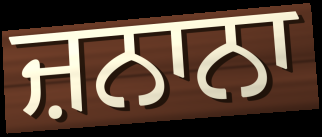
ਜ਼ਨਾਨਾ